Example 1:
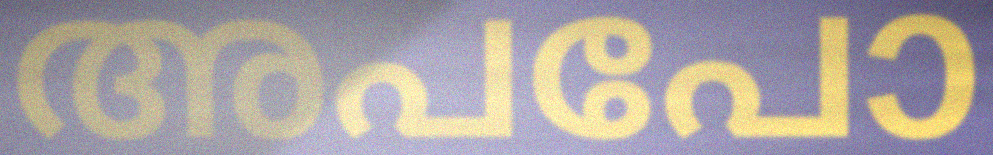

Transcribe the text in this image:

അപപോ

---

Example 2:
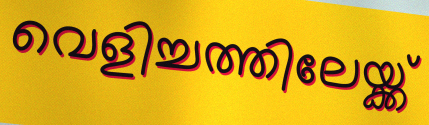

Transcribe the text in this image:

വെളിച്ചത്തിലേയ്ക്ക്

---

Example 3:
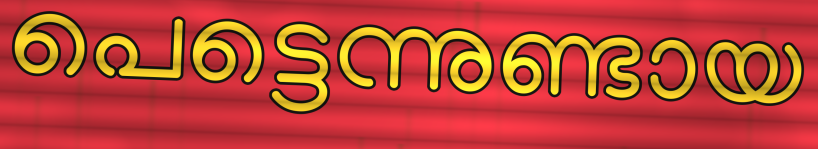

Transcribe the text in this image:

പെട്ടെന്നുണ്ടായ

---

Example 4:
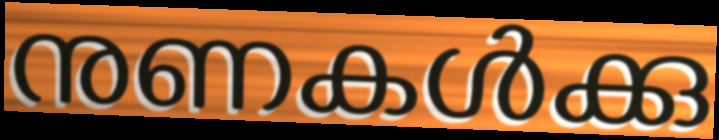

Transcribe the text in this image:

നുണകൾക്കു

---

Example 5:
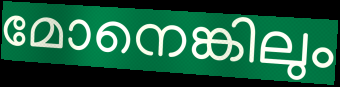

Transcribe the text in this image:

മോനെങ്കിലും